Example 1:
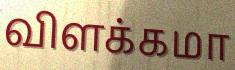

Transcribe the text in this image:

விளக்கமா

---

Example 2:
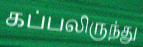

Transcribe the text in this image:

கப்பலிருந்து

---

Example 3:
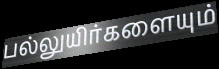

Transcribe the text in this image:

பல்லுயிர்களையும்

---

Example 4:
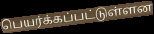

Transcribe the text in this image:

பெயர்க்கப்பட்டுள்ளன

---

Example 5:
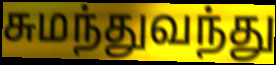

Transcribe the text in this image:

சுமந்துவந்து